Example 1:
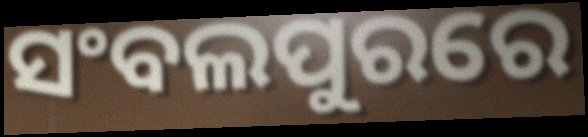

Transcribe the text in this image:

ସଂବଲପୁରରେ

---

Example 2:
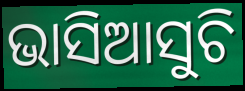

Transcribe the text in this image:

ଭାସିଆସୁଚି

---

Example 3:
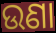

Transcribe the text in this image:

ଉଣା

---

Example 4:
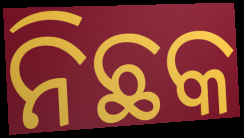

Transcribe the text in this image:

ନିଛକ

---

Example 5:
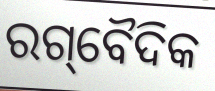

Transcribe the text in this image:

ରଗ୍‌ବୈଦିକ